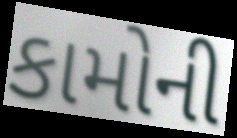
કામોની